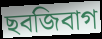
ছবজিবাগ